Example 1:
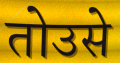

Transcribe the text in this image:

तोउसे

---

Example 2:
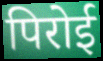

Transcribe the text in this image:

पिरोई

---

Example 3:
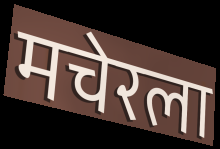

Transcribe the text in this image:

मचेरला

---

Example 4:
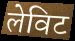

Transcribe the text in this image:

लेविट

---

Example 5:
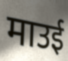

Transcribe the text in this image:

माउई